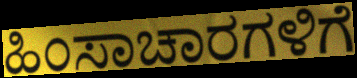
ಹಿಂಸಾಚಾರಗಳಿಗೆ